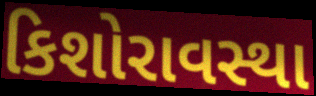
કિશોરાવસ્થા